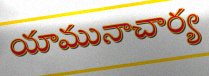
యామునాచార్య